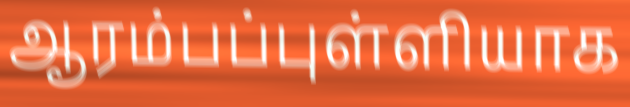
ஆரம்பப்புள்ளியாக